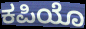
ಕಪಿಯೊ